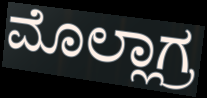
ಮೊಲ್ಲಾಗ್ರ